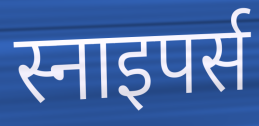
स्नाइपर्स